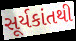
સૂર્યકાંતથી